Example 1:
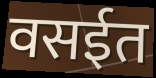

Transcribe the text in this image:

वसईत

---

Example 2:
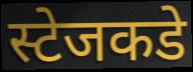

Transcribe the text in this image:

स्टेजकडे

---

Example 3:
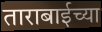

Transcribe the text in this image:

ताराबाईच्या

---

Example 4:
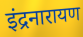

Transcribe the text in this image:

इंद्रनारायण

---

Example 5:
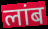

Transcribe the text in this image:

लांब